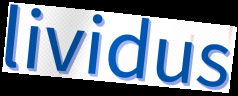
lividus